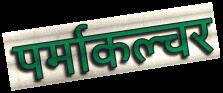
पर्माकल्चर